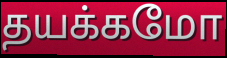
தயக்கமோ